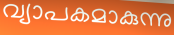
വ്യാപകമാകുന്നു